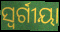
ସ୍ବର୍ଗୀୟା